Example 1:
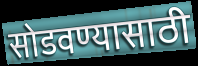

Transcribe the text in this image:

सोडवण्यासाठी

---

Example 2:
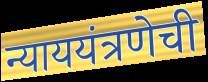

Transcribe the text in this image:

न्याययंत्रणेची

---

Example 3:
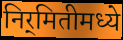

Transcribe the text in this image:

निर्मितीमध्ये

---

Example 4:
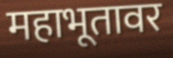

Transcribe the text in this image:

महाभूतावर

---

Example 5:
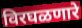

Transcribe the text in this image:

विरघळणारे